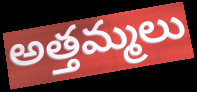
అత్తమ్మలు